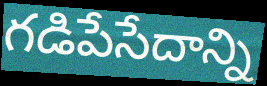
గడిపేసేదాన్ని